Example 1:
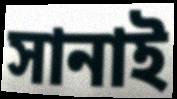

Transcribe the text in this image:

সানাই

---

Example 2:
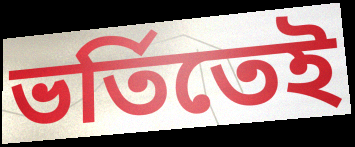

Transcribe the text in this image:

ভর্তিতেই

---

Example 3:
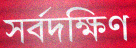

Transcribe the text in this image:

সর্বদক্ষিণ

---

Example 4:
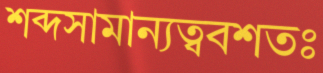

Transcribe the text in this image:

শব্দসামান্যত্ববশতঃ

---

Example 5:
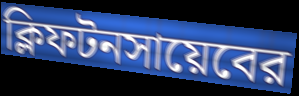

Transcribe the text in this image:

ক্লিফটনসায়েবের